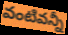
వంటివన్నీ